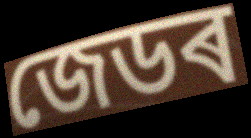
জেডৰ